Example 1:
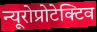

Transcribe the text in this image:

न्यूरोप्रोटेक्टिव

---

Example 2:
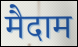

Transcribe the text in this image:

मैदाम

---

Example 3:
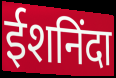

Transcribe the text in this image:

ईशनिंदा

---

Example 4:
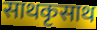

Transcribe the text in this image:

साथकृसाथ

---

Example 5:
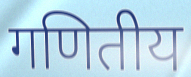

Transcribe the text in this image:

गणितीय